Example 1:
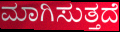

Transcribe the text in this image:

ಮಾಗಿಸುತ್ತದೆ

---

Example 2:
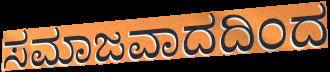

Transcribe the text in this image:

ಸಮಾಜವಾದದಿಂದ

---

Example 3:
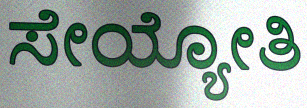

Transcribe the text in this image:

ಸೇಯ್ಯೋತಿ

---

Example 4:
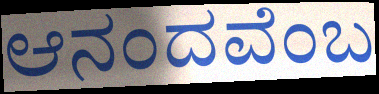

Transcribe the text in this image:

ಆನಂದವೆಂಬ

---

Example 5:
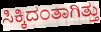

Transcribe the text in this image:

ಸಿಕ್ಕಿದಂತಾಗಿತ್ತು